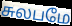
சுலபமே